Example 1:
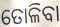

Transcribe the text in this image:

ତୋଳିବା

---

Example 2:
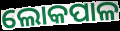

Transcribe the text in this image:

ଲୋକପାଳ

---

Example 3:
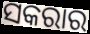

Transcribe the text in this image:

ସକରାର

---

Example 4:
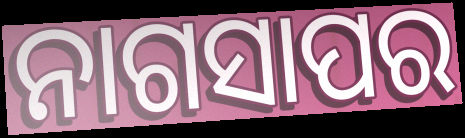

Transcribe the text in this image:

ନାଗସାପର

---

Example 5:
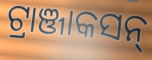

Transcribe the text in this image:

ଟ୍ରାଞ୍ଜାକସନ୍